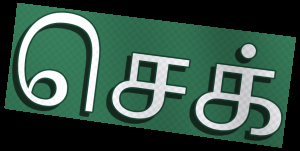
செக்